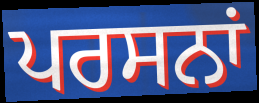
ਪਰਸਨਾਂ